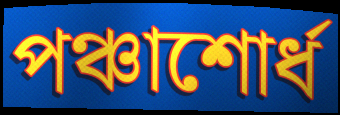
পঞ্চাশোর্ধ